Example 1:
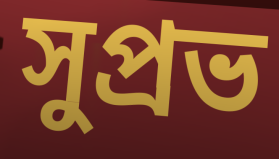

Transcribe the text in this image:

সুপ্রভ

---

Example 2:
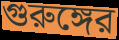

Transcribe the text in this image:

গুরুঙ্গের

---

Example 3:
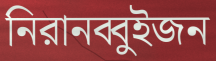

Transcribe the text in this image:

নিরানব্বুইজন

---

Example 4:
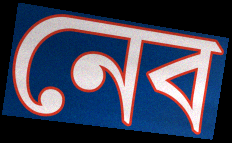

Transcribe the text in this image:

নেব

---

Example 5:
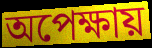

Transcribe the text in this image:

অপেক্ষায়